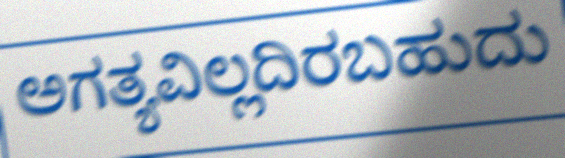
ಅಗತ್ಯವಿಲ್ಲದಿರಬಹುದು